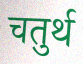
चतुर्थ